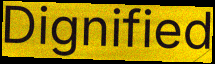
Dignified